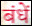
बंधें